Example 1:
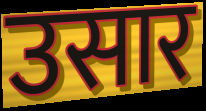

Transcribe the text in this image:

उसार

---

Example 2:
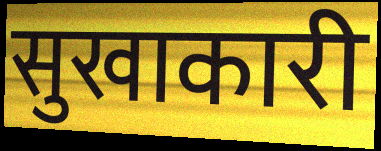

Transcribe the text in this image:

सुखाकारी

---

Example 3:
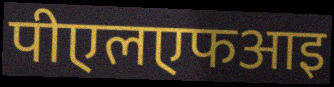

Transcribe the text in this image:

पीएलएफआइ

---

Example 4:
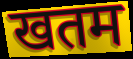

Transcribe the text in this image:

खतम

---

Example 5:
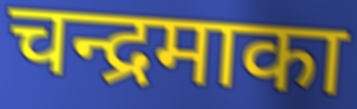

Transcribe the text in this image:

चन्द्रमाका